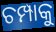
ଚମ୍ପାକୁ